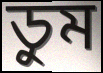
ডুম